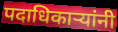
पदाधिकार्‍यांनी